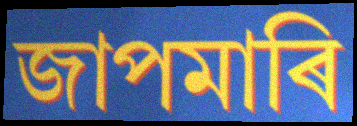
জাপমাৰি